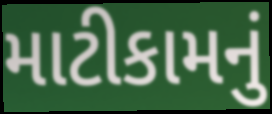
માટીકામનું